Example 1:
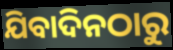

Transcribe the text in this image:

ଯିବାଦିନଠାରୁ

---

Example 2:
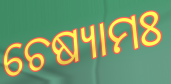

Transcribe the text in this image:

ଚେଷ୍ୟାମଃ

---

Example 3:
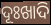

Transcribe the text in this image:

ଦୂଃଖାଦି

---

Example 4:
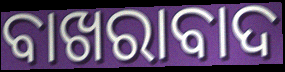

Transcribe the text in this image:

ବାଖରାବାଦ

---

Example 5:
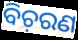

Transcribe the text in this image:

ବିଚ଼ରଣ